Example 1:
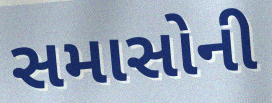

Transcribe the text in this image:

સમાસોની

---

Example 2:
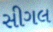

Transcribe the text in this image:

સીગલ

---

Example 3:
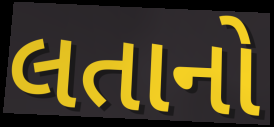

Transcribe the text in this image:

લતાનો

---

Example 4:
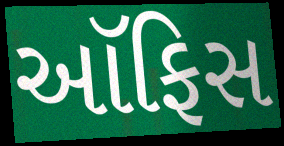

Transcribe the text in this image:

આૅફિસ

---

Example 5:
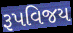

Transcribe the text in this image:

રૂપવિજય